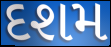
દશમ